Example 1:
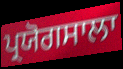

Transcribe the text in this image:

ਪ੍ਰਯੋਗਸਾਲਾ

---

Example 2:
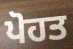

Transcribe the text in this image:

ਪੋਹਤ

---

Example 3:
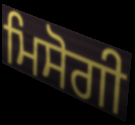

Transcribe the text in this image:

ਮਿਸੋਗੀ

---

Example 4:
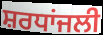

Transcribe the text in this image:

ਸ਼ਰਧਾਂਜਲੀ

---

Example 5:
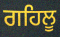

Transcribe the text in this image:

ਗਹਿਲੂ